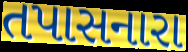
તપાસનારા